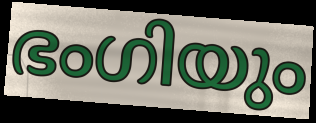
ഭംഗിയും